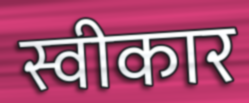
स्‍वीकार